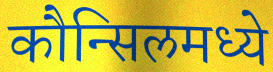
कौन्सिलमध्ये